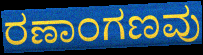
ರಣಾಂಗಣವು